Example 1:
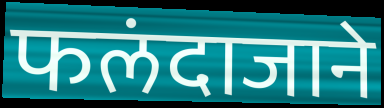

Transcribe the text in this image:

फलंदाजाने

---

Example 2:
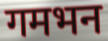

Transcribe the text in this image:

गमभन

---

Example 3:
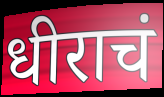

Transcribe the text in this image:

धीराचं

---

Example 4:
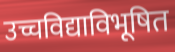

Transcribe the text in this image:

उच्चविद्याविभूषित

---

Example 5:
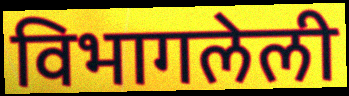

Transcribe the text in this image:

विभागलेली